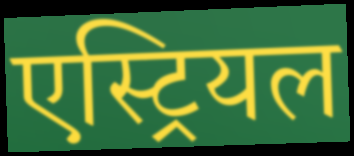
एस्ट्रियल